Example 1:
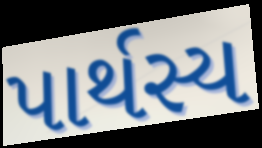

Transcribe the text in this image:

પાર્થસ્ય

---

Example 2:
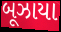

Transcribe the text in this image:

બૂઝાયા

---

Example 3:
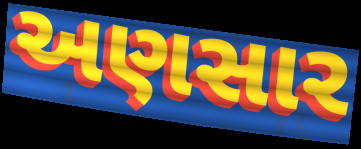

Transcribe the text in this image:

અણસાર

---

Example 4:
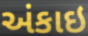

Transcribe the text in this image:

અંકાઇ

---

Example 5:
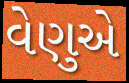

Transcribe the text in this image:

વેણુએ